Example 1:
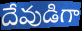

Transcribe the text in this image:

దేవుడిగా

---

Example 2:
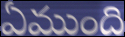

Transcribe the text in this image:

ఏముంది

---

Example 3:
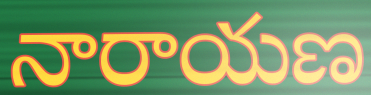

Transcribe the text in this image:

నారాయణ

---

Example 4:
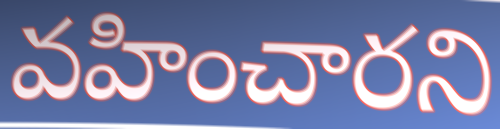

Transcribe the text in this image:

వహించారని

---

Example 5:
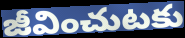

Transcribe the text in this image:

జీవించుటకు